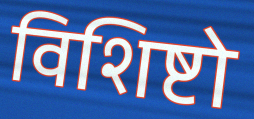
विशिष्टो